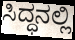
ಸಿದ್ಧನಲ್ಲಿ